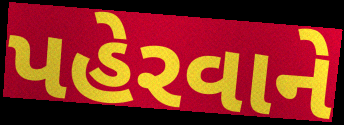
પહેરવાને